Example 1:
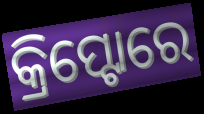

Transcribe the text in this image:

କ୍ରିପ୍ଟୋରେ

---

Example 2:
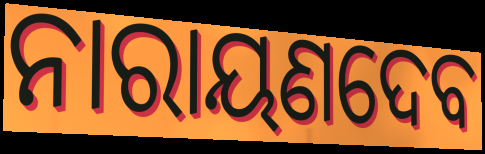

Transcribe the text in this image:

ନାରାୟଣଦେବ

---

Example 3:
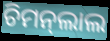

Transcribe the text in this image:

ଚିମନ୍‍ଲାଲ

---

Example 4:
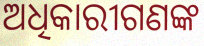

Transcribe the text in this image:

ଅଧିକାରୀଗଣଙ୍କ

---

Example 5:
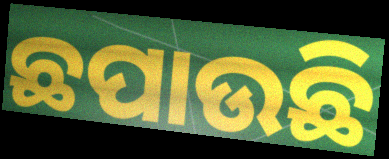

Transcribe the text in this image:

ଛପାଉଛି